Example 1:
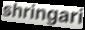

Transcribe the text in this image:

shringari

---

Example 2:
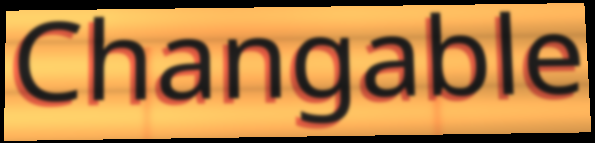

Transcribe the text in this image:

Changable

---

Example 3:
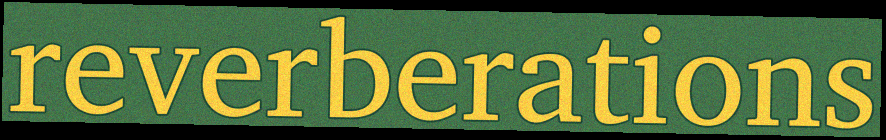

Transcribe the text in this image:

reverberations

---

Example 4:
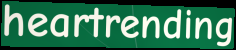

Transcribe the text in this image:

heartrending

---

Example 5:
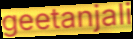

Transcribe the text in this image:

geetanjali